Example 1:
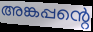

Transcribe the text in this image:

അങ്കപ്പന്റെ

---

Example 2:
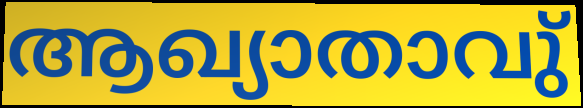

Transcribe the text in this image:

ആഖ്യാതാവു്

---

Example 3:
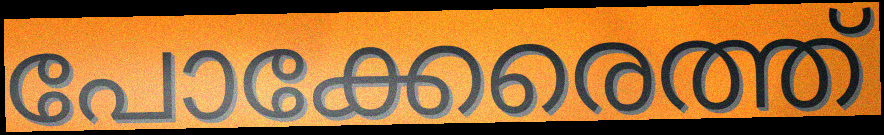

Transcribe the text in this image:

പോക്കേരെത്ത്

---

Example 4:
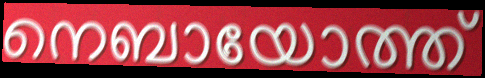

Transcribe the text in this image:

നെബായോത്ത്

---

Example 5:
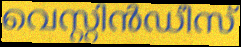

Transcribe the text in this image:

വെസ്റ്റിൻഡീസ്